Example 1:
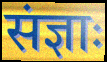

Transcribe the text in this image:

संज्ञाः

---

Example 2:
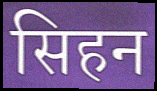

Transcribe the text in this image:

सिहन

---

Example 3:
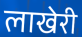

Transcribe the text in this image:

लाखेरी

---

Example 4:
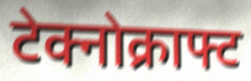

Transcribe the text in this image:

टेक्नोक्राफ्ट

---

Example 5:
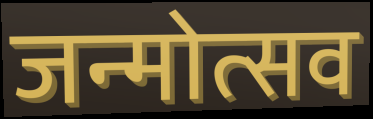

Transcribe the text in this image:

जन्मोत्सव